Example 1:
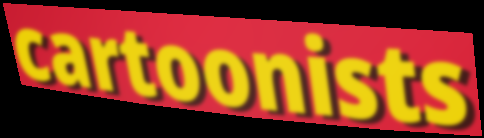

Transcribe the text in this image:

cartoonists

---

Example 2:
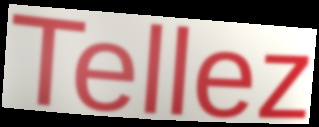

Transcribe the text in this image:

Tellez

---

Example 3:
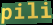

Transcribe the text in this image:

pili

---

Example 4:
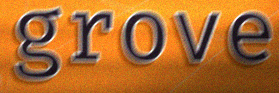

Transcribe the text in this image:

grove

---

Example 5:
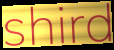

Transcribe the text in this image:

shird